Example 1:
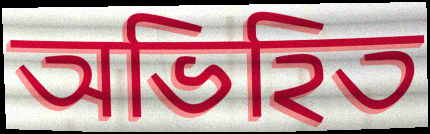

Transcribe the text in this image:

অভিহিত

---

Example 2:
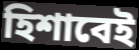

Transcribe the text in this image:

হিশাবেই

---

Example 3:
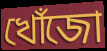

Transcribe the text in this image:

খোঁজো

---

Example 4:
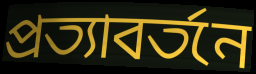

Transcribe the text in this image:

প্রত্যাবর্তনে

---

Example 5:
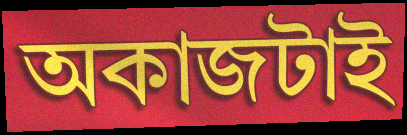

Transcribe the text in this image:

অকাজটাই